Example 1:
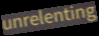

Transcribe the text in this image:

unrelenting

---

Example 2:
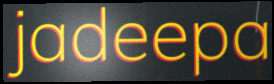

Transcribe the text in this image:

jadeepa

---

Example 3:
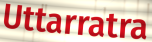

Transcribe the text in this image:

Uttarratra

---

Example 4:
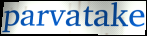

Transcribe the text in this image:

parvatake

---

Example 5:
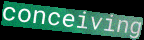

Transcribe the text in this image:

conceiving